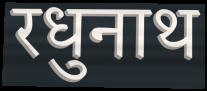
रधुनाथ